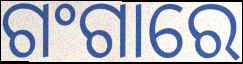
ଗଂଗାରେ